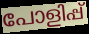
പോളിപ്പ്